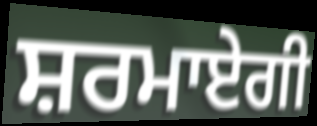
ਸ਼ਰਮਾਏਗੀ